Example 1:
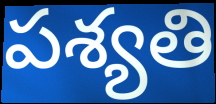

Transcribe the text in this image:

పశ్యతి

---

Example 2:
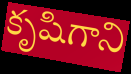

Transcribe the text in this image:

కృషిగాని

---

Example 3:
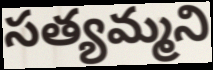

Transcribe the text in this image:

సత్యమ్మని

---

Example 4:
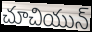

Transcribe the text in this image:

చూచియున్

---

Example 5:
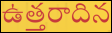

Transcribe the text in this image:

ఉత్తరాదిన